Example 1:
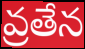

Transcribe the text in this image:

వ్రతేన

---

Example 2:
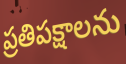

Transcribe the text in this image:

ప్రతిపక్షాలను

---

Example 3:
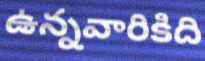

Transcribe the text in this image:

ఉన్నవారికిది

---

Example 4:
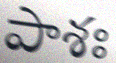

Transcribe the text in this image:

పాశః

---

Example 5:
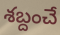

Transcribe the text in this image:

శబ్దంచే